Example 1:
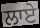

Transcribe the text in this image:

ਲਾਏ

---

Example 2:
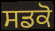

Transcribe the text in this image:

ਸਡਕੋ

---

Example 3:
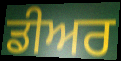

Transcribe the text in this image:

ਡੀਅਰ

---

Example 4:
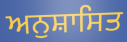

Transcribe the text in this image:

ਅਨੁਸ਼ਾਸਿਤ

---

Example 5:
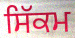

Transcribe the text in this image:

ਸਿੱਕਮ